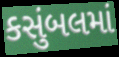
કસુંબલમાં